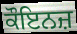
ਕੌਇਨਜ਼